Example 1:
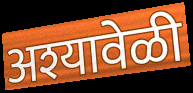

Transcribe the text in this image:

अश्यावेळी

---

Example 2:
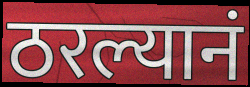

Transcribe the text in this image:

ठरल्यानं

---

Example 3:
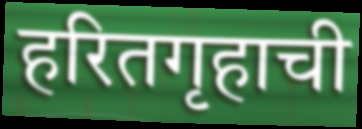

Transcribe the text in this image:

हरितगृहाची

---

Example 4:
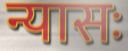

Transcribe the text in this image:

न्यासः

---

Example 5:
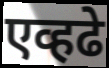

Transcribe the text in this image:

एव्हढे